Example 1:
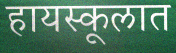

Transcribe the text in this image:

हायस्कूलात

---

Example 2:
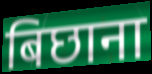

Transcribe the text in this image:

बिछाना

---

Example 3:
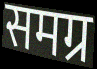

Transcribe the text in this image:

समग्र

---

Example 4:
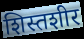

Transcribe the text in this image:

शिस्तशीर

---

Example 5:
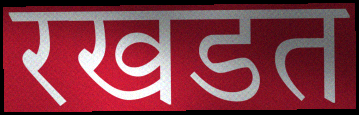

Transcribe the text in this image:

रखडत